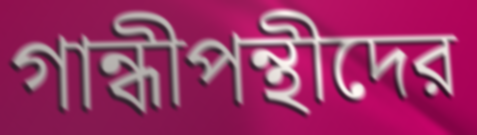
গান্ধীপন্থীদের